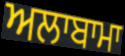
ਅਲਾਬਾਮਾ